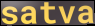
satva